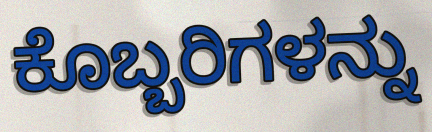
ಕೊಬ್ಬರಿಗಳನ್ನು